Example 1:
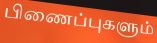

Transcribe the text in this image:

பிணைப்புகளும்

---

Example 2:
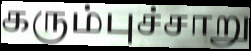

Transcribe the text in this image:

கரும்புச்சாறு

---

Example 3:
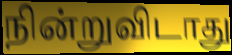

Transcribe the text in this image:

நின்றுவிடாது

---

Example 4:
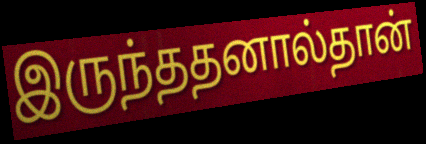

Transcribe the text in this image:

இருந்ததனால்தான்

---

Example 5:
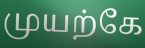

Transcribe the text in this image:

முயற்கே